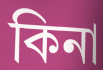
কিনা